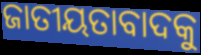
ଜାତୀୟତାବାଦକୁ